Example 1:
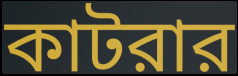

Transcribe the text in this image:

কাটরার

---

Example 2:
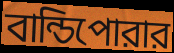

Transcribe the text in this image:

বান্ডিপোরার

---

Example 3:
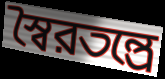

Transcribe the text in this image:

স্বৈরতন্ত্রে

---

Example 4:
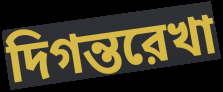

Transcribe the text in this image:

দিগন্তরেখা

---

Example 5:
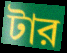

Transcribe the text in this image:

টার